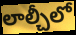
లాల్చీలో